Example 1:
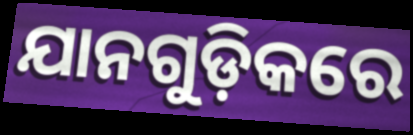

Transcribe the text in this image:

ଯାନଗୁଡ଼ିକରେ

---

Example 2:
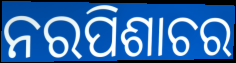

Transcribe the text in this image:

ନରପିଶାଚର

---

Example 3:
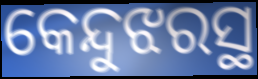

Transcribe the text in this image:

କେନ୍ଦୁଝରସ୍ଥ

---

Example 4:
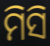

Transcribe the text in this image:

ମିସି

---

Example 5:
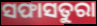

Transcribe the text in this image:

ସଫାସତୁରା